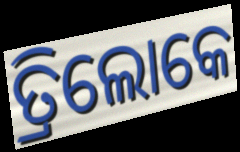
ତ୍ରିଲୋକେ